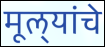
मूल्यांचे